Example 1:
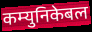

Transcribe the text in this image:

कम्युनिकेबल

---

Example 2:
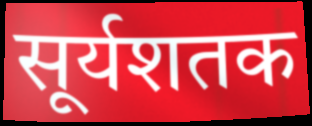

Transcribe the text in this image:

सूर्यशतक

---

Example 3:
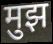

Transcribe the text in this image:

मुझ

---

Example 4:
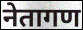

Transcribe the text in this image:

नेतागण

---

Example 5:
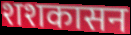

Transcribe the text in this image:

शशकासन